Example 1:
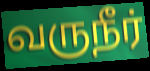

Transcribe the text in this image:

வருநீர்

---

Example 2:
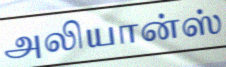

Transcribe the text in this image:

அலியான்ஸ்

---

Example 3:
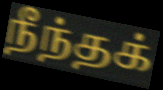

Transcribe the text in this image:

நீந்தக்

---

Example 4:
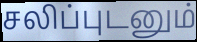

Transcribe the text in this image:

சலிப்புடனும்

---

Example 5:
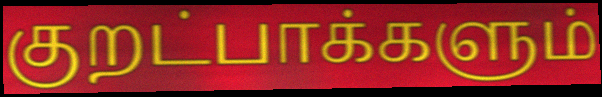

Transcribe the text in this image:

குறட்பாக்களும்